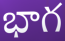
భాగ